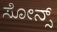
ಸೋನ್ಸ್